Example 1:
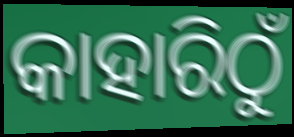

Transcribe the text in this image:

କାହାରିଠୁଁ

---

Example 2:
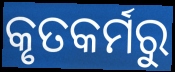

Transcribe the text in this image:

କୃତକର୍ମରୁ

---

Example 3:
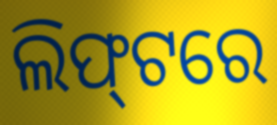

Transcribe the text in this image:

ଲିଫ୍‍ଟରେ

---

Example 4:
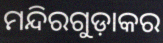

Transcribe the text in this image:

ମନ୍ଦିରଗୁଡ଼ାକର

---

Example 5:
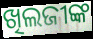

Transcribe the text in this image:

ଖିଲଜୀଙ୍କ